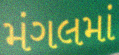
મંગલમાં